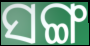
ସଙ୍ଗ